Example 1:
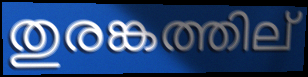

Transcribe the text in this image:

തുരങ്കത്തില്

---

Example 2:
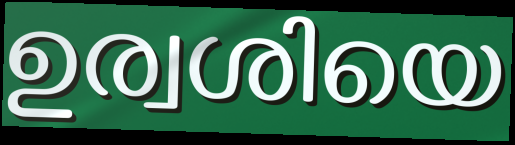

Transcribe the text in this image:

ഉര്വശിയെ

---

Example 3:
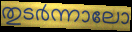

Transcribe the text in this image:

തുടർന്നാലോ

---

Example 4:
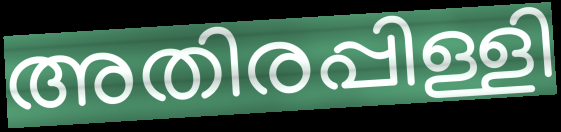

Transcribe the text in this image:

അതിരപ്പിള്ളി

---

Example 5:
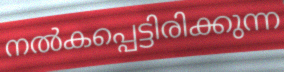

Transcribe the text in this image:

നൽകപ്പെട്ടിരിക്കുന്ന